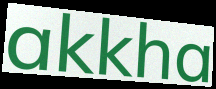
akkha